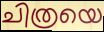
ചിത്രയെ